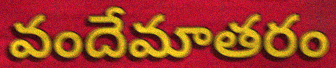
వందేమాతరం